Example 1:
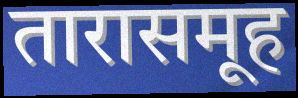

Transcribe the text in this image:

तारासमूह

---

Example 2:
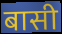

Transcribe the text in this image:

बासी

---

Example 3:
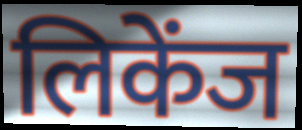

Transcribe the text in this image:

लिकेंज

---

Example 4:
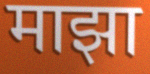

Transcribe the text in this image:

माझा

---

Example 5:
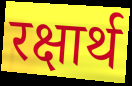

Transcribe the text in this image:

रक्षार्थ